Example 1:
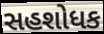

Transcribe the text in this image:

સહશોધક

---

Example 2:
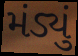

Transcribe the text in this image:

મંડ્યું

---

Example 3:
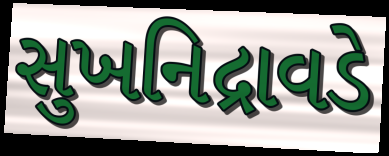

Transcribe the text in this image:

સુખનિદ્રાવડે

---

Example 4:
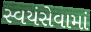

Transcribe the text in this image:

સ્વયંસેવામાં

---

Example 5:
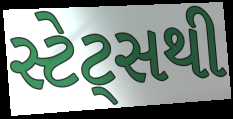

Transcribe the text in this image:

સ્ટેટ્સથી